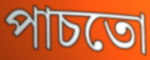
পাচতো